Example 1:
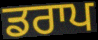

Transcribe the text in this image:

ਡਰਾਪ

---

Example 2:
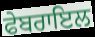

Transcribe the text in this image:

ਫੇਬਰਾਇਲ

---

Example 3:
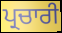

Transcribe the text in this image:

ਪ੍ਰਚਾਰੀ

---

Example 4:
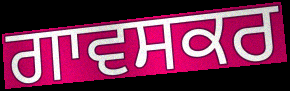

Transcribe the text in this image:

ਗਾਵਸਕਰ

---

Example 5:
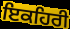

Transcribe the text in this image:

ਇਕਹਿਰੀ